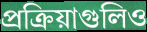
প্রক্রিয়াগুলিও